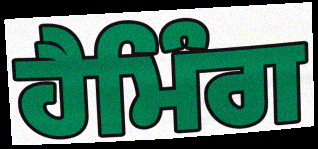
ਹੈਮਿੰਗ